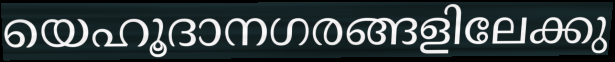
യെഹൂദാനഗരങ്ങളിലേക്കു